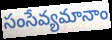
సంసేవ్యమానాం